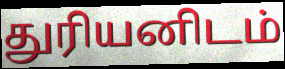
துரியனிடம்